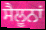
ਸੈਲੂਨਾਂ